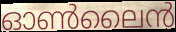
ഓൺലൈൻ